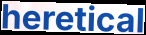
heretical